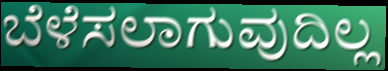
ಬೆಳೆಸಲಾಗುವುದಿಲ್ಲ